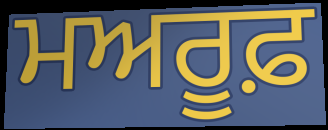
ਮਅਰੂਫ਼